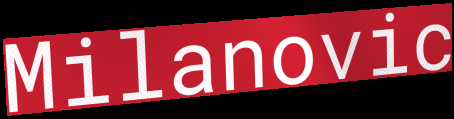
Milanovic